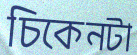
চিকেনটা